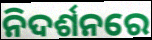
ନିଦର୍ଶନରେ